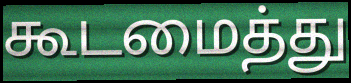
கூடமைத்து